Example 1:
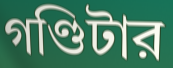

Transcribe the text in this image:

গণ্ডিটার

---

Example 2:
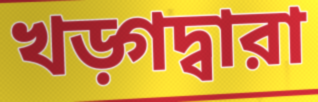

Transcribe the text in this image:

খড়্গদ্বারা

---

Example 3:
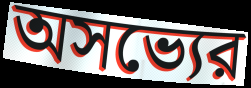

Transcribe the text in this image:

অসভ্যের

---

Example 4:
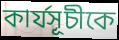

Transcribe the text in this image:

কার্যসূচীকে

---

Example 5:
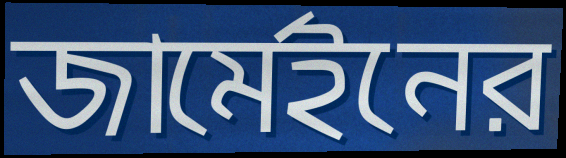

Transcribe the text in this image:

জার্মেইনের